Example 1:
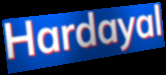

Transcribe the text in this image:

Hardayal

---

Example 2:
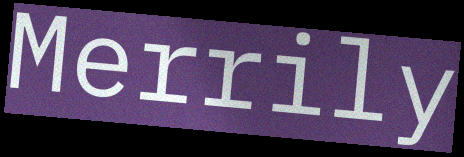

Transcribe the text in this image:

Merrily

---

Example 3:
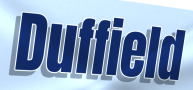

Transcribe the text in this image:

Duffield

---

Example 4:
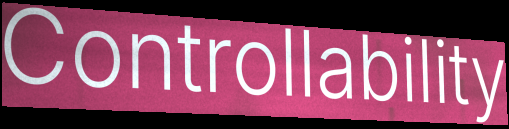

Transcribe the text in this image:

Controllability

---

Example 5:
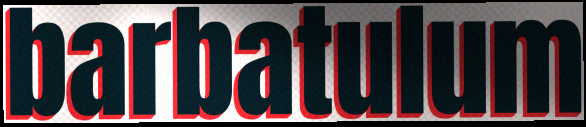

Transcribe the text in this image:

barbatulum